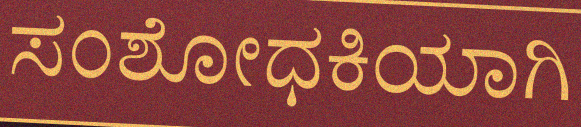
ಸಂಶೋಧಕಿಯಾಗಿ